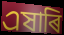
এষাৰি